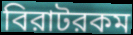
বিরাটরকম